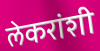
लेकरांशी